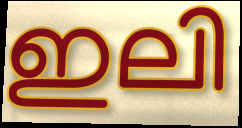
ഇലി